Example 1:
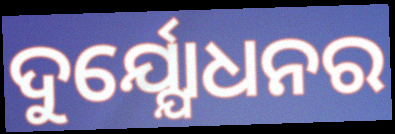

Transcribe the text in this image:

ଦୁର୍ଯ୍ଯୋଧନର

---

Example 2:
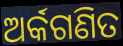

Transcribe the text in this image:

ଅର୍କଗଣିତ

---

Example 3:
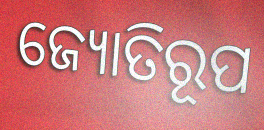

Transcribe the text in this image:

ଜ୍ୟୋତିରୂପ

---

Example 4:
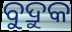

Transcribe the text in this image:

ବୁଦ୍ରୁକ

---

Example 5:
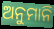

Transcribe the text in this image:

ଅନୁମାନି